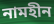
নামহীন